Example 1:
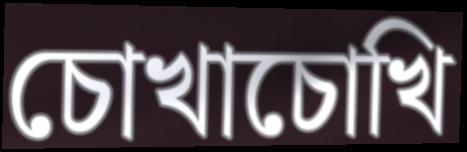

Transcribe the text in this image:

চোখাচোখি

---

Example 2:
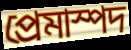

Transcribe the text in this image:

প্রেমাস্পদ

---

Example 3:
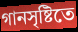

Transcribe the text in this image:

গানসৃষ্টিতে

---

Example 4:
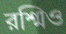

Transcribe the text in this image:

রশ্মিও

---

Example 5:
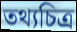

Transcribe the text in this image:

তথ্যচিত্র